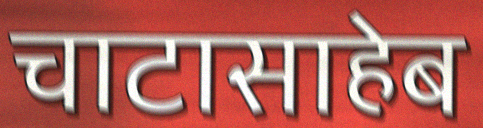
चाटासाहेब